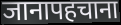
जानापहचाना